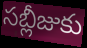
సబ్లీజుకు